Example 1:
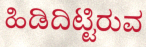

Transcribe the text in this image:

ಹಿಡಿದಿಟ್ಟಿರುವ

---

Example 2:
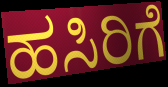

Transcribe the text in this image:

ಹಸಿರಿಗೆ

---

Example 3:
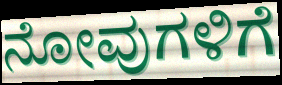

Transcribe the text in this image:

ನೋವುಗಳಿಗೆ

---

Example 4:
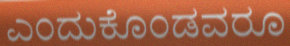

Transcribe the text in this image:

ಎಂದುಕೊಂಡವರೂ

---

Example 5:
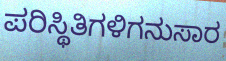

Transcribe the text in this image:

ಪರಿಸ್ಥಿತಿಗಳಿಗನುಸಾರ